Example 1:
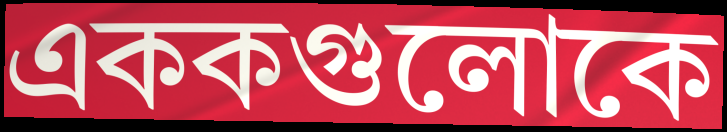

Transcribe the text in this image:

এককগুলোকে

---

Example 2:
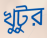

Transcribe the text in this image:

খুটুর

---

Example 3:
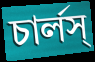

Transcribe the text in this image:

চার্লস্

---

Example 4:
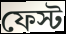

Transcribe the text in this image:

ফেস্ট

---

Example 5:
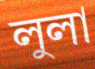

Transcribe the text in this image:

লুলা